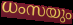
ധംസയും